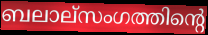
ബലാല്സംഗത്തിന്റെ